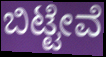
ಬಿಟ್ಟೇವೆ